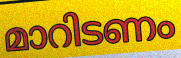
മാറിടണം